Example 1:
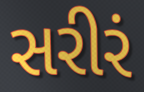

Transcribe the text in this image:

સરીરં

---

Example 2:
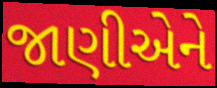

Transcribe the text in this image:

જાણીએને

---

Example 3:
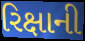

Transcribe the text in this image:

રિક્ષાની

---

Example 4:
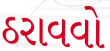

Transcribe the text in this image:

ઠરાવવો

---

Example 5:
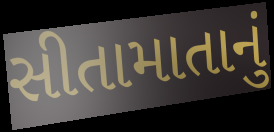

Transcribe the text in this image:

સીતામાતાનું